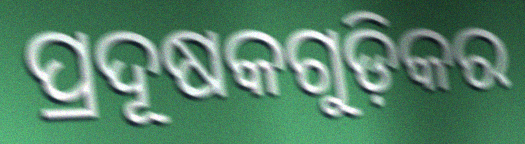
ପ୍ରଦୂଷକଗୁଡ଼ିକର